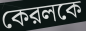
কেরলকে